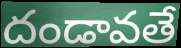
దండావతే